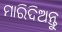
ମାରିଦିଅନ୍ତୁ